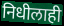
निधीलाही